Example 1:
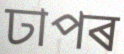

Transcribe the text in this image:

ঢাপৰ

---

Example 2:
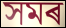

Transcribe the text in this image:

সমৰ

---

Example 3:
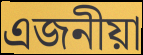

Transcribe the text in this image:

এজনীয়া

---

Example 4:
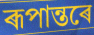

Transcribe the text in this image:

ৰূপান্তৰে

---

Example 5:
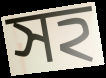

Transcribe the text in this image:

সহ